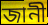
জানী